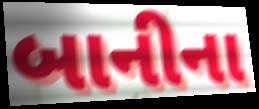
બાનીના